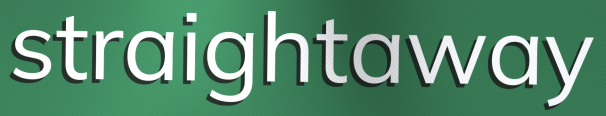
straightaway